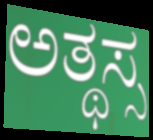
ಅತ್ಥಸ್ಸ